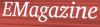
EMagazine